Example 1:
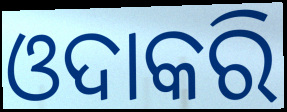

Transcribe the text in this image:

ଓଦାକରି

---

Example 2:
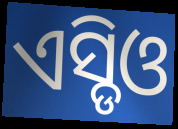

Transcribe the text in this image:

ଏସ୍ଡିଓ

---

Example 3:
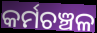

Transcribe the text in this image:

କର୍ମଚଞ୍ଚଳ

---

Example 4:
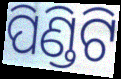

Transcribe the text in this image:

ପିଣ୍ଡିଟି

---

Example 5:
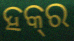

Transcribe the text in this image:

ହକ୍‌ର